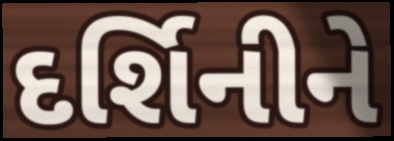
દર્શિનીને